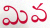
మివ